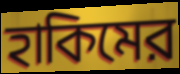
হাকিমের